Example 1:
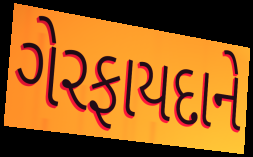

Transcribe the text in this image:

ગેરફાયદાને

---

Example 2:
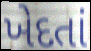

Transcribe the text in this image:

ખેદતાં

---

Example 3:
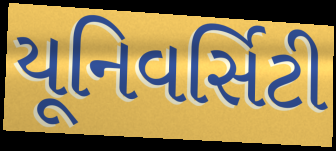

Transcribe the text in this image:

યૂનિવર્સિટી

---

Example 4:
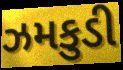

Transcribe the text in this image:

ઝમકુડી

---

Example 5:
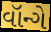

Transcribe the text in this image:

વૉન્ગે